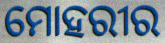
ମୋହରୀର